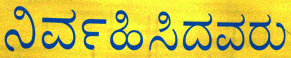
ನಿರ್ವಹಿಸಿದವರು